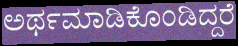
ಅರ್ಥಮಾಡಿಕೊಂಡಿದ್ದರೆ